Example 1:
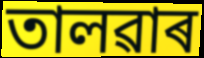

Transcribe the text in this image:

তালৱাৰ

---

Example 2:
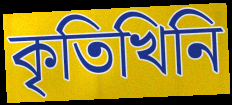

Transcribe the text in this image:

কৃতিখিনি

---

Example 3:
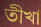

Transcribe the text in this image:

তীখা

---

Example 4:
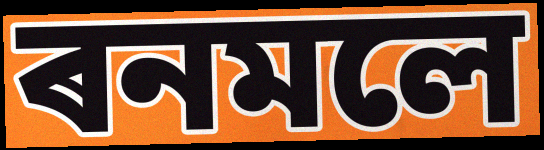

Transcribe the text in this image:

ৰনমলে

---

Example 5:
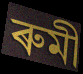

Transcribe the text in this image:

ৰুমী